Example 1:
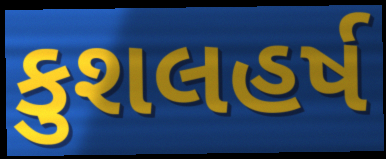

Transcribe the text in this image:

કુશલહર્ષ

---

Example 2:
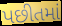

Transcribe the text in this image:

પછીતમાં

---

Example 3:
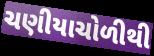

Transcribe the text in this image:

ચણીયાચોળીથી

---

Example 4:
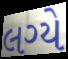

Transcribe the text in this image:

લગ્યે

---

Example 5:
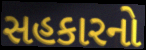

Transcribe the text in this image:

સહકારનો